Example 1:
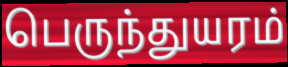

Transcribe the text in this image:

பெருந்துயரம்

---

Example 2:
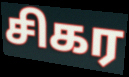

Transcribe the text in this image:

சிகர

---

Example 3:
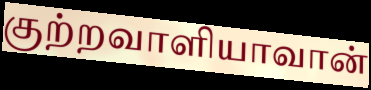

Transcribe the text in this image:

குற்றவாளியாவான்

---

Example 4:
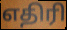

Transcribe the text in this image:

எதிரி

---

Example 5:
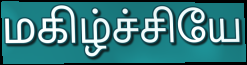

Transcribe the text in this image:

மகிழ்ச்சியே